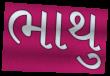
ભાથુ